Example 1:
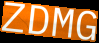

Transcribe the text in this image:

ZDMG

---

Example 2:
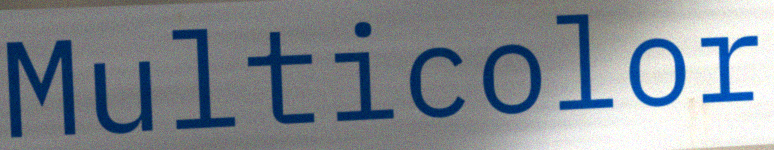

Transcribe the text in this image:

Multicolor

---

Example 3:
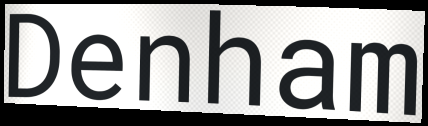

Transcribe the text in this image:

Denham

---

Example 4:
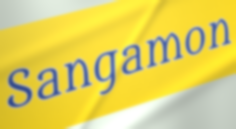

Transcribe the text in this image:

Sangamon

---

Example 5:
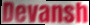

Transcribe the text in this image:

Devansh